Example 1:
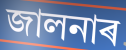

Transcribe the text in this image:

জালনাৰ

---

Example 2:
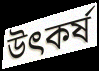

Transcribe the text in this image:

উৎকৰ্ষ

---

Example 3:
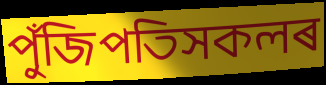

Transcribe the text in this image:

পুঁজিপতিসকলৰ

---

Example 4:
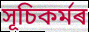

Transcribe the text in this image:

সূচিকৰ্মৰ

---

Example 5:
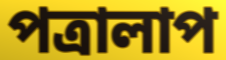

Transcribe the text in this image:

পত্ৰালাপ